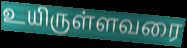
உயிருள்ளவரை